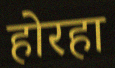
होरहा